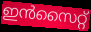
ഇൻസൈറ്റ്